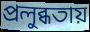
প্রলুব্ধতায়